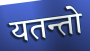
यतन्तो